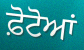
ਫ਼ੋਟੋਆਂ